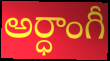
అర్ధాంగీ